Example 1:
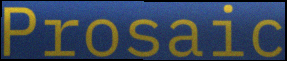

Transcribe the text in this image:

Prosaic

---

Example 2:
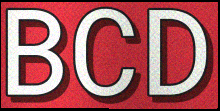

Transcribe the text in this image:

BCD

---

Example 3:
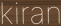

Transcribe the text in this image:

kiran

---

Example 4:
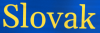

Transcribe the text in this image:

Slovak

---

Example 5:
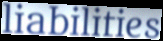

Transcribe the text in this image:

liabilities